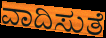
ವಾದಿಸುತೆ